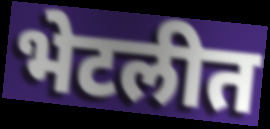
भेटलीत